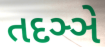
તદઞ્ઞે